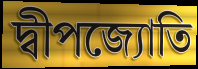
দ্বীপজ্যোতি